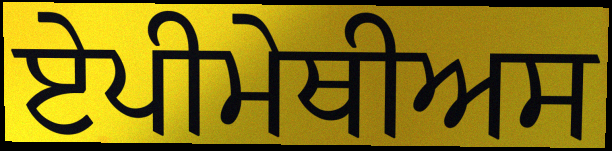
ਏਪੀਮੇਥੀਅਸ